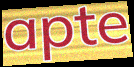
apte